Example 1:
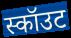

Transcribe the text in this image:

स्कॉउट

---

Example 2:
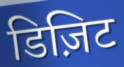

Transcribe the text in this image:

डिज़िट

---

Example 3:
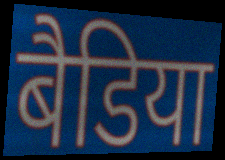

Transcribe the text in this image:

बैडिया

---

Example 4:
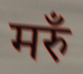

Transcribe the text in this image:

मरुँ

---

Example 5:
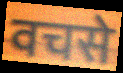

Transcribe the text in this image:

वचसे